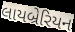
લાયબ્રેરિયન